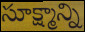
సూక్ష్మాన్ని